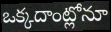
ఒక్కదాంట్లోనూ